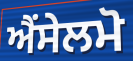
ਐਂਸੇਲਮੋ